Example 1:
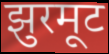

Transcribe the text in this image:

झुरमूट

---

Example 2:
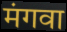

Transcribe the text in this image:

मंगवा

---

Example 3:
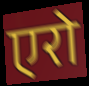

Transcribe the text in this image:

एरो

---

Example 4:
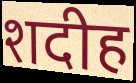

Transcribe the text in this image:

शदीह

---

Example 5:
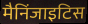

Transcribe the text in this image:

मैनिंजाइटिस